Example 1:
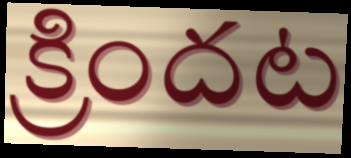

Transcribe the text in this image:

క్రిందట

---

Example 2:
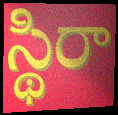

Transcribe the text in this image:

స్థిరా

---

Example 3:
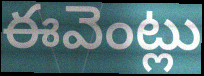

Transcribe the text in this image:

ఈవెంట్లు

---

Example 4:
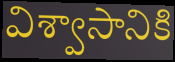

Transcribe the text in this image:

విశ్వాసానికి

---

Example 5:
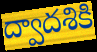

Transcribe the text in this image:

ద్వాదశికి